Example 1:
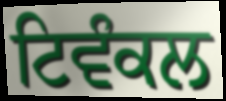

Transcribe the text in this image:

ਟਿਵੰਕਲ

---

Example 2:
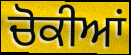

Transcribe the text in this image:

ਚੋਕੀਆਂ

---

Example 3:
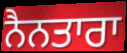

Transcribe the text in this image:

ਨੈਨਤਾਰਾ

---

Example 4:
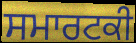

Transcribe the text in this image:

ਸਮਾਰਟਕੀ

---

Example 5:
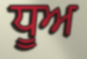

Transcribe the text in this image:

ਧੂਅ